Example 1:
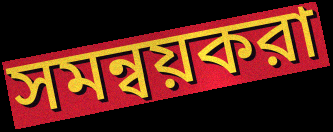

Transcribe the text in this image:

সমন্বয়করা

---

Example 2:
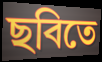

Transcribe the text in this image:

ছবিতে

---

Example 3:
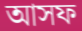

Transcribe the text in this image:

আসফ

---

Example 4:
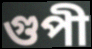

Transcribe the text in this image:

গুপী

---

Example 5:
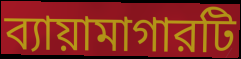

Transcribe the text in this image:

ব্যায়ামাগারটি